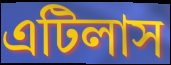
এটিলাস